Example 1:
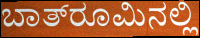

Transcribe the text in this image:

ಬಾತ್‌ರೂಮಿನಲ್ಲಿ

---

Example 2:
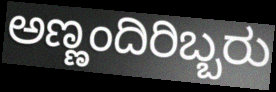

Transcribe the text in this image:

ಅಣ್ಣಂದಿರಿಬ್ಬರು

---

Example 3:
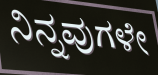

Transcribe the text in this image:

ನಿನ್ನವುಗಳೇ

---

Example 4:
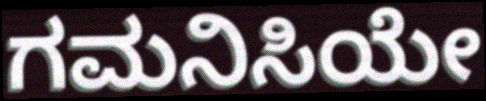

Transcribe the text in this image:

ಗಮನಿಸಿಯೇ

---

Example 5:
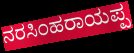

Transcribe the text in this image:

ನರಸಿಂಹರಾಯಪ್ಪ